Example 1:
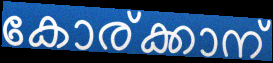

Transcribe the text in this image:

കോര്ക്കാന്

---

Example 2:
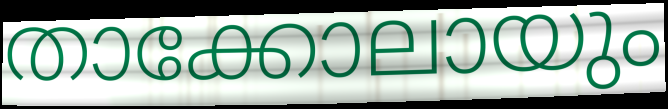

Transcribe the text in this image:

താക്കോലായും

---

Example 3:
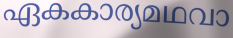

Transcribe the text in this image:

ഏകകാര്യമഥവാ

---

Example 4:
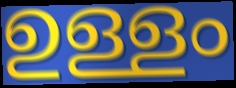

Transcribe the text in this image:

ഉള്ളം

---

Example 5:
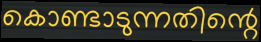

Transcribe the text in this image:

കൊണ്ടാടുന്നതിന്റെ